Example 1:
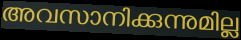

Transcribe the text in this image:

അവസാനിക്കുന്നുമില്ല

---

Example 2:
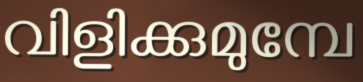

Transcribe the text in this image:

വിളിക്കുമുമ്പേ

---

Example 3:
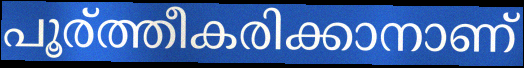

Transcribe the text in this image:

പൂര്ത്തീകരിക്കാനാണ്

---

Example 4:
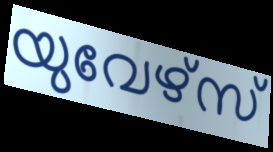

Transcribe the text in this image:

യുവേഴ്സ്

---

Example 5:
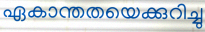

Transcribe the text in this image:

ഏകാന്തതയെക്കുറിച്ചു